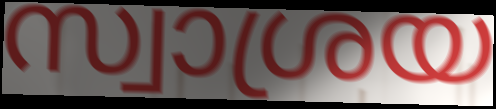
സ്വാശ്രയ